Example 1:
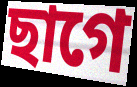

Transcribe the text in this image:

ছাগে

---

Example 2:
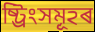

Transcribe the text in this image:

ষ্ট্ৰিংসমূহৰ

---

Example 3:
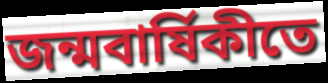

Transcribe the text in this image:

জন্মবাৰ্ষিকীতে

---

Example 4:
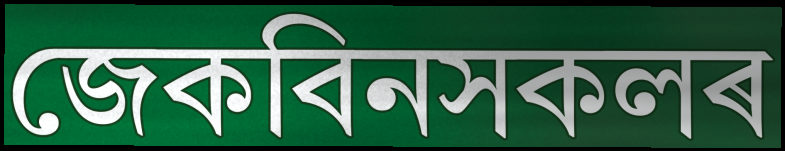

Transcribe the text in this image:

জেকবিনসকলৰ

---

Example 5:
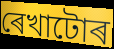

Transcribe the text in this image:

ৰেখাটোৰ